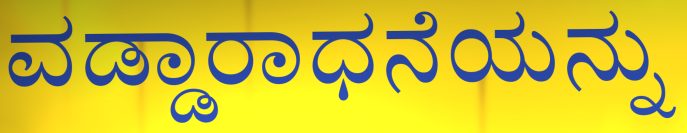
ವಡ್ಡಾರಾಧನೆಯನ್ನು